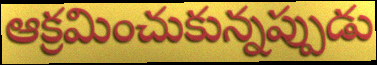
ఆక్రమించుకున్నప్పుడు